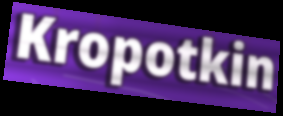
Kropotkin